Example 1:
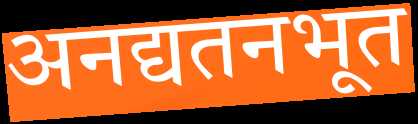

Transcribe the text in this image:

अनद्यतनभूत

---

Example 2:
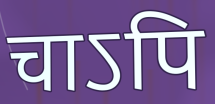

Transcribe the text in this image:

चाऽपि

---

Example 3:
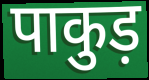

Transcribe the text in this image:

पाकुड़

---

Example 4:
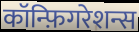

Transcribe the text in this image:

कॉन्फ़िगरेशन्स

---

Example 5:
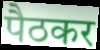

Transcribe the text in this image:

पैठकर